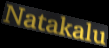
Natakalu